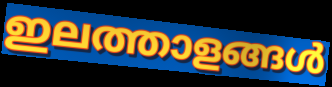
ഇലത്താളങ്ങൾ